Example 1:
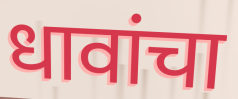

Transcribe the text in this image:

धावांचा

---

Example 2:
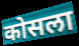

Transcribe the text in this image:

कोसला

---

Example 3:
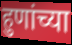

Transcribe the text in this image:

हुणांच्या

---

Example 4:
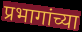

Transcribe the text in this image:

प्रभागांच्या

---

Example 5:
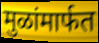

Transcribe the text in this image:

मुळांमार्फत